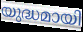
യുദ്ധമായി